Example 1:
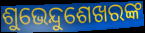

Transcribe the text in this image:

ଶୁଭେନ୍ଦୁଶେଖରଙ୍କ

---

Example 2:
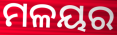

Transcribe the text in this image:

ମଳୟର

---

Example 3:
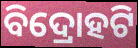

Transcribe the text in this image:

ବିଦ୍ରୋହଟି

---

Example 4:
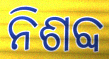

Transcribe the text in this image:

ନିଶବ୍ଦ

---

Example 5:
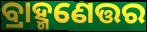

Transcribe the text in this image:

ବ୍ରାହ୍ମଣେତ୍ତର